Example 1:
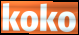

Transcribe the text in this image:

koko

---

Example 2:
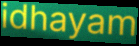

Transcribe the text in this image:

idhayam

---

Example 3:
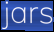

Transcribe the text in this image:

jars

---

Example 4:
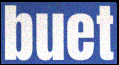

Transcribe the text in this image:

buet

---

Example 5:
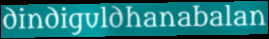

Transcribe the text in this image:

dindiguldhanabalan